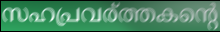
സഹപ്രവര്ത്തകന്റെ